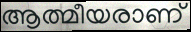
ആത്മീയരാണ്